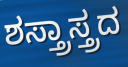
ಶಸ್ತ್ರಾಸ್ತ್ರದ